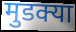
मुडक्या